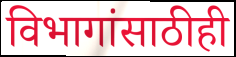
विभागांसाठीही